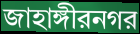
জাহাঙ্গীরনগর